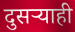
दुसर्‍याही